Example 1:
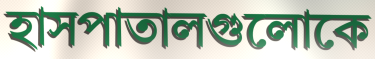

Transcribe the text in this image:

হাসপাতালগুলোকে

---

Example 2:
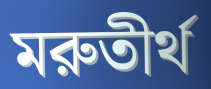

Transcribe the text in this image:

মরুতীর্থ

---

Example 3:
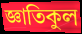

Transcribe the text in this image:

জ্ঞাতিকুল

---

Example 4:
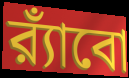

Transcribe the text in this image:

র‍্যাঁবো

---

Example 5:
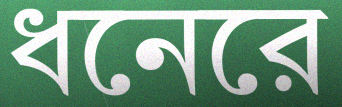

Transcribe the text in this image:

ধনেরে